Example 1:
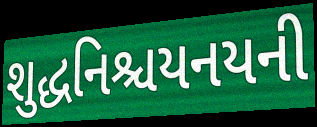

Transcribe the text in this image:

શુદ્ધનિશ્ચયનયની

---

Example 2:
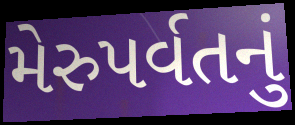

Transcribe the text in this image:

મેરુપર્વતનું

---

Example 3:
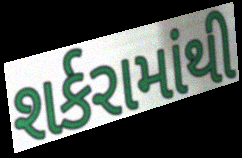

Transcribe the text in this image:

શર્કરામાંથી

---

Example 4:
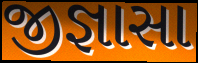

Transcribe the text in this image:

જીજ્ઞાસા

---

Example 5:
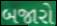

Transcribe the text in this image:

બજારો